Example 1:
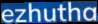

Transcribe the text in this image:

ezhutha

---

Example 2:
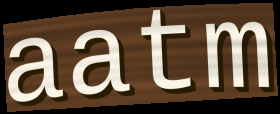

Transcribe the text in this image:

aatm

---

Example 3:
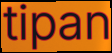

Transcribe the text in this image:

tipan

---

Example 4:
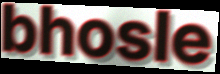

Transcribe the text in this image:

bhosle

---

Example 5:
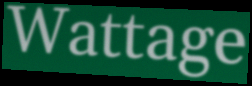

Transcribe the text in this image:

Wattage